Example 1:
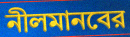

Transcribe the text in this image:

নীলমানবের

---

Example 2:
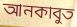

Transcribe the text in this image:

আনকাবুত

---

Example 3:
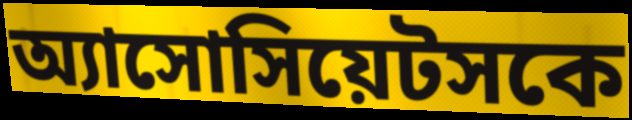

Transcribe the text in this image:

অ্যাসোসিয়েটসকে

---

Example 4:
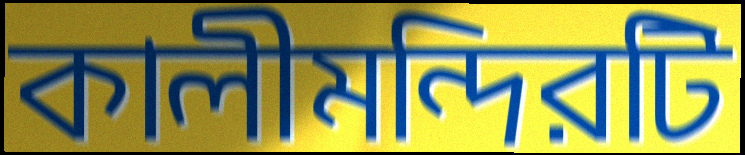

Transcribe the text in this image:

কালীমন্দিরটি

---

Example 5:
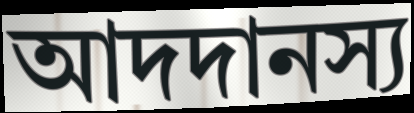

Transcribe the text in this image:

আদদানস্য